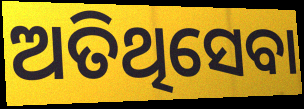
ଅତିଥିସେବା